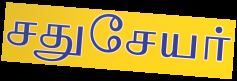
சதுசேயர்